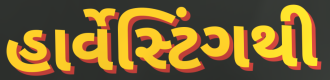
હાર્વેસ્ટિંગથી